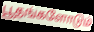
பூதங்களோடும்